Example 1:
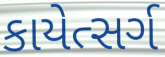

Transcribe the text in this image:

કાયેત્સર્ગ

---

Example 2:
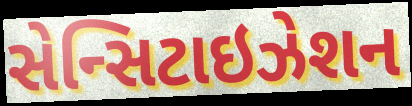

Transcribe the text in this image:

સેન્સિટાઇઝેશન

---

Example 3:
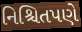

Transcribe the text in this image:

નિશ્ચિતપણે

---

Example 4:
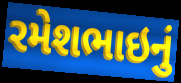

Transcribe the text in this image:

રમેશભાઇનું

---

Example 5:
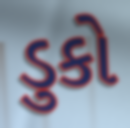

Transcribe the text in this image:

ડુકો